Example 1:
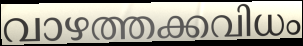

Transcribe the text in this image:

വാഴത്തക്കവിധം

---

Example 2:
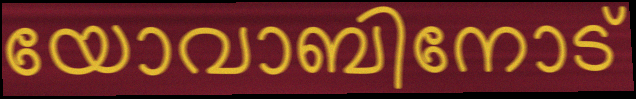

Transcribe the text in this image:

യോവാബിനോട്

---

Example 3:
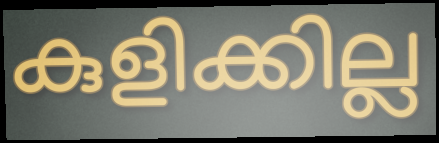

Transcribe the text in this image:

കുളിക്കില്ല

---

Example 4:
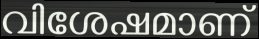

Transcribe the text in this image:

വിശേഷമാണ്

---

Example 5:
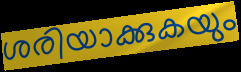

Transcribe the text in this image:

ശരിയാക്കുകയും